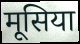
मूसिया